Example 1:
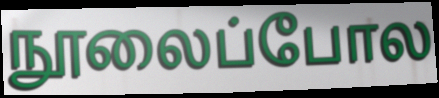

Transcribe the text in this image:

நூலைப்போல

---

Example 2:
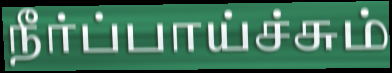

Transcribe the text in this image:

நீர்ப்பாய்ச்சும்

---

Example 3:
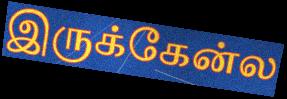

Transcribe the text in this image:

இருக்கேன்ல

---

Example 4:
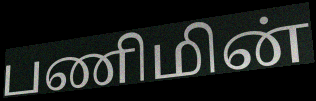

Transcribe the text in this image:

பணிமின்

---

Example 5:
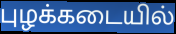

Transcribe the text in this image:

புழக்கடையில்